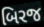
બિરજ